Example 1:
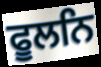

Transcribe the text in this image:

ਫੂਲਨਿ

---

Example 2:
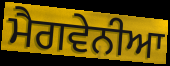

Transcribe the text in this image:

ਮੈਗਵੇਨੀਆ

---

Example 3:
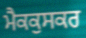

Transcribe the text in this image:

ਮੈਕਕੁਸਕਰ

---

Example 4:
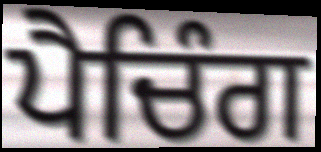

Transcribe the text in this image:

ਪੈਚਿੰਗ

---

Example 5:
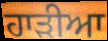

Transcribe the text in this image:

ਹਾੜੀਆ